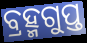
ବ୍ରହ୍ମଗୁପ୍ତ